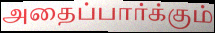
அதைப்பார்க்கும்